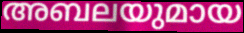
അബലയുമായ